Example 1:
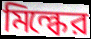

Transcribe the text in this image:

মিল্কের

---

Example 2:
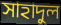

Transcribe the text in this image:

সাহাদুল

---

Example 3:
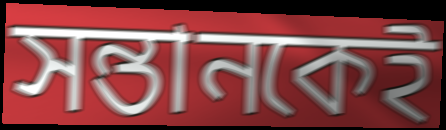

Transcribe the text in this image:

সন্তানকেই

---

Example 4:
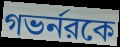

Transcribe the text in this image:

গভর্নরকে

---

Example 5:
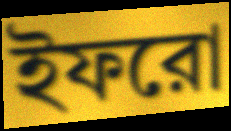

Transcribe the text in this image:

ইফরো